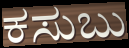
ಕಸುಬು